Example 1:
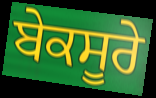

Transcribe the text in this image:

ਬੇਕਸੂਰੇ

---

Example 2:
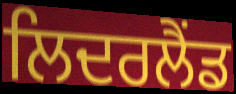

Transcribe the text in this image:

ਲਿਦਰਲੈਂਡ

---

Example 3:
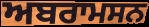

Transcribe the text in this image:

ਅਬਰਾਮਸਨ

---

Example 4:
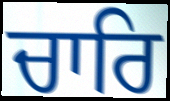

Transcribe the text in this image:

ਚਾਰਿ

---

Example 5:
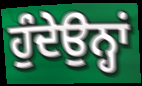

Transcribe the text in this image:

ਹੁੰਦੇਉਨ੍ਹਾਂ